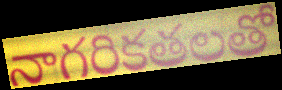
నాగరికతలతో